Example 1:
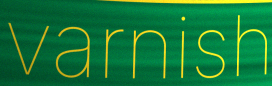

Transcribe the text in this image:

varnish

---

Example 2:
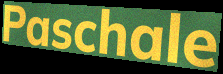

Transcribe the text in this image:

Paschale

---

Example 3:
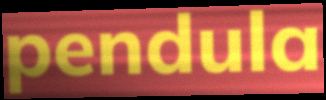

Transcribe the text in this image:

pendula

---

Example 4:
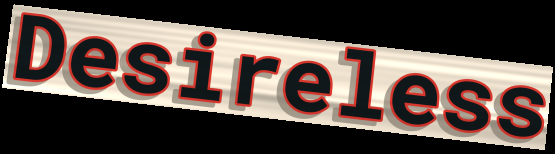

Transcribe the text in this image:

Desireless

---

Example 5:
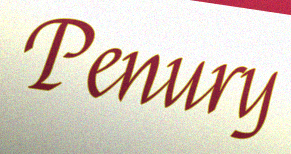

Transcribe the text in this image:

Penury